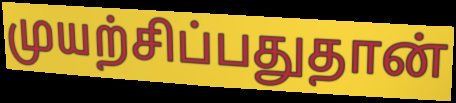
முயற்சிப்பதுதான்